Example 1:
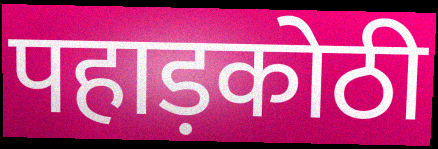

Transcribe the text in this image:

पहाड़कोठी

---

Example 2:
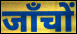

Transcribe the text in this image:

जाँचों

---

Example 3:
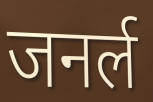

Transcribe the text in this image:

जनर्ल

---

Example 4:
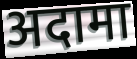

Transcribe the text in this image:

अदामा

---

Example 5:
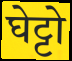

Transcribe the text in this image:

घेट्टो